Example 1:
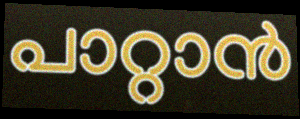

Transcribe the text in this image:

പാറ്റാൻ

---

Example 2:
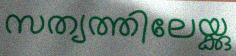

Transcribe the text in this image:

സത്യത്തിലേയ്ക്കു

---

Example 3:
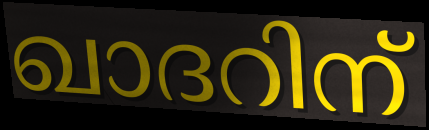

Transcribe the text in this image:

ഖാദറിന്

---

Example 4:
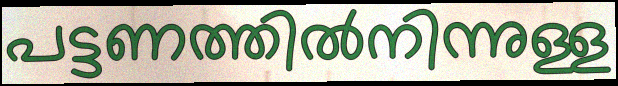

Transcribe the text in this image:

പട്ടണത്തിൽനിന്നുള്ള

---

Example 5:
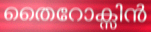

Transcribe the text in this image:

തൈറോക്സിൻ